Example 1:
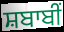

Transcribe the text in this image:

ਸ਼ਬਾਬੀਂ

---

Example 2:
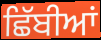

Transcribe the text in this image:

ਛਿੱਬੀਆਂ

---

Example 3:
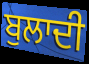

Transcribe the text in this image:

ਬੁਲਾਦੀ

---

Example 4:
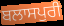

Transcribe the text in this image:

ਬਲਾਸਪੁਰੀ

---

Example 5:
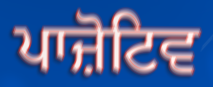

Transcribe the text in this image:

ਪਾਜ਼ੋਟਿਵ